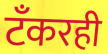
टँकरही